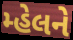
મ્હેલને